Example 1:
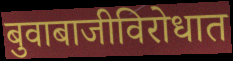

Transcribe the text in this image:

बुवाबाजीविरोधात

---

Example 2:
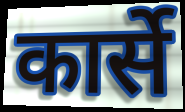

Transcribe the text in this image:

कार्से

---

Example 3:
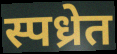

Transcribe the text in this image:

स्पध्रेत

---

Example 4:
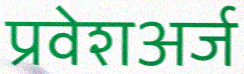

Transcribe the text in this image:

प्रवेशअर्ज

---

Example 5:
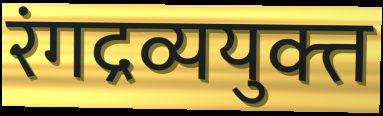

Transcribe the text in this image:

रंगद्रव्ययुक्त